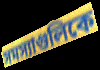
সমস্যাগুলিকে